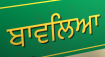
ਬਾਵਲਿਆ